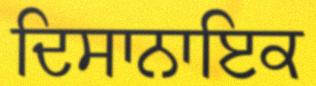
ਦਿਸਾਨਾਇਕ